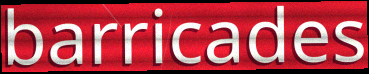
barricades